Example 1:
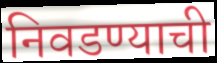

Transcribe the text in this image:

निवडण्याची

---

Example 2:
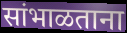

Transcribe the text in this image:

सांभाळताना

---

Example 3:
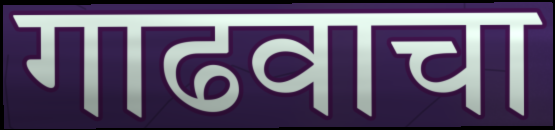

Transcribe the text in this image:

गाढवाचा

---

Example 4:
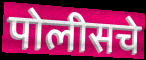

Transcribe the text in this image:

पोलीसचे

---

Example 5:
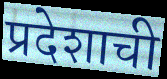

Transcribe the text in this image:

प्रदेशाची